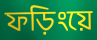
ফড়িংয়ে